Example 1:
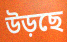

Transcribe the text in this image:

উড়ছে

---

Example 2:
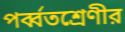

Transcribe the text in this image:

পর্ব্বতশ্রেণীর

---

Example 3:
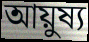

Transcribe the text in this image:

আয়ুষ্য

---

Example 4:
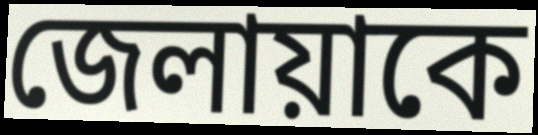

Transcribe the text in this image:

জেলায়াকে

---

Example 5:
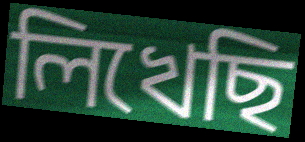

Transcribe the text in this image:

লিখেছি